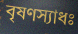
বৃষণস্যাধঃ